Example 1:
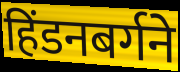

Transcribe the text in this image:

हिंडनबर्गने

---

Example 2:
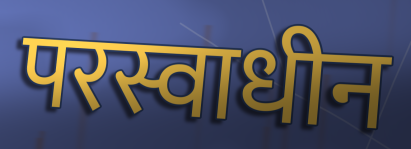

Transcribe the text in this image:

परस्वाधीन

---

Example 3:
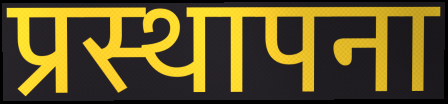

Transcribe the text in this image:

प्रस्थापना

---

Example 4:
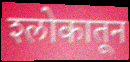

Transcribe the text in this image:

श्लोकातून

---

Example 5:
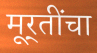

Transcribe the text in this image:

मूर्तींचा